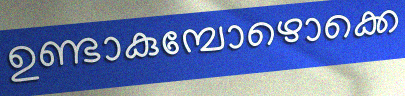
ഉണ്ടാകുമ്പോഴൊക്കെ